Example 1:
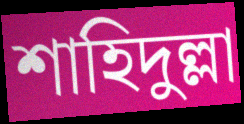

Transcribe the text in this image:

শাহিদুল্লা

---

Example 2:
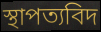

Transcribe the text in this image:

স্থাপত্যবিদ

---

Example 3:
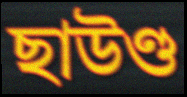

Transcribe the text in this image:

ছাউণ্ড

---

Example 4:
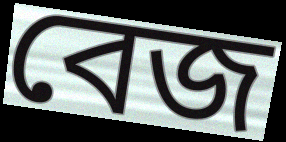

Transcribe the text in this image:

বেজ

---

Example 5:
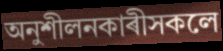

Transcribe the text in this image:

অনুশীলনকাৰীসকলে